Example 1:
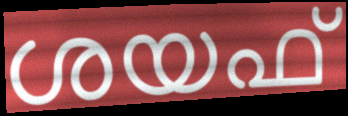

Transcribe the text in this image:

ശയഫ്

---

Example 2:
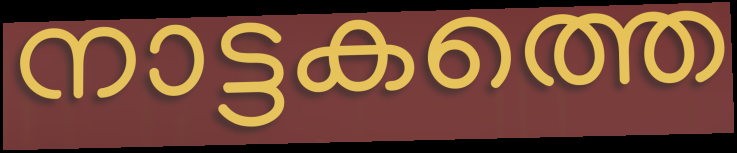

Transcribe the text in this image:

നാട്ടകത്തെ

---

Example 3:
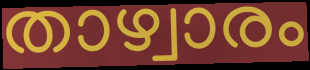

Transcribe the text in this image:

താഴ്വാരം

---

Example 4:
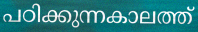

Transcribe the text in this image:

പഠിക്കുന്നകാലത്ത്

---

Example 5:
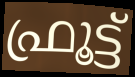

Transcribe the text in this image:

ഫ്രൂട്ട്